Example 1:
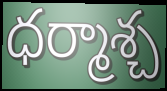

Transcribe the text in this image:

ధర్మాశ్చ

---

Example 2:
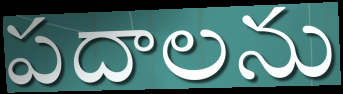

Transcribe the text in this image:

పదాలను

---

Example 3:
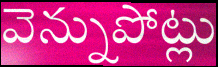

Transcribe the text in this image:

వెన్నుపోట్లు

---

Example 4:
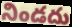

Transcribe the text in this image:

నిండదు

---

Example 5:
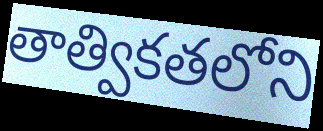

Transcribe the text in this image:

తాత్వికతలోని